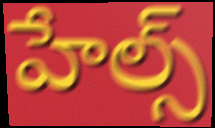
హేల్స్